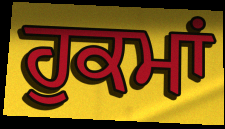
ਹੁਕਮਾਂ